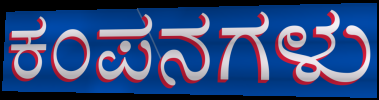
ಕಂಪನಗಳು